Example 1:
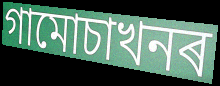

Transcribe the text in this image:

গামোচাখনৰ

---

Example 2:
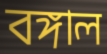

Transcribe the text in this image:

বঙ্গাল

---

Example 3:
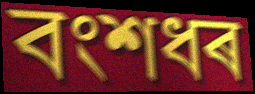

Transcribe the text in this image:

বংশধৰ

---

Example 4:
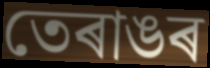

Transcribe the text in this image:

তেৰাঙৰ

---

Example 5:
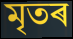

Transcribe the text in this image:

মৃতৰ